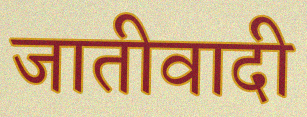
जातीवादी